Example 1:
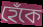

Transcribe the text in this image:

হেঁকে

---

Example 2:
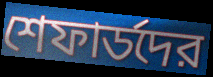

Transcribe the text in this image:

শেফার্ডদের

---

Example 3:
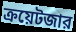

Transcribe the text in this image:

ক্রয়েটজার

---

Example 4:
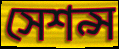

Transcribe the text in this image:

সেশন্স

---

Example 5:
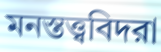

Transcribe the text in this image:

মনস্তত্ত্ববিদরা